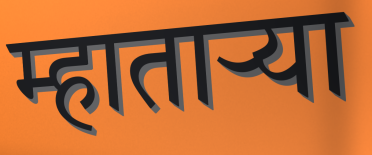
म्हातार्‍या